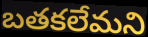
బతకలేమని